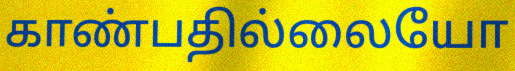
காண்பதில்லையோ